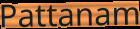
Pattanam